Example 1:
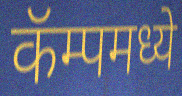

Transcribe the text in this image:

कॅम्पमध्ये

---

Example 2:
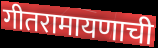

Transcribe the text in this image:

गीतरामायणाची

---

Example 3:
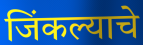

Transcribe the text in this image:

जिंकल्याचे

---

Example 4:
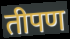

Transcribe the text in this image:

तीपण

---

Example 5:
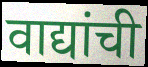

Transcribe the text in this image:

वाद्यांची